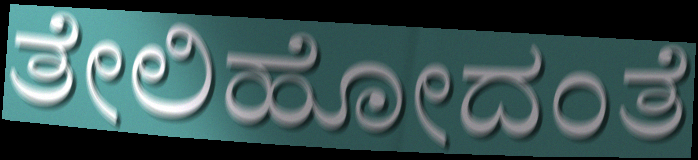
ತೇಲಿಹೋದಂತೆ